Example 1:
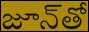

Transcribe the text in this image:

జూన్‌తో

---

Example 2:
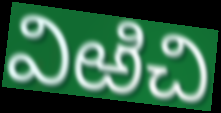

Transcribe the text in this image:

విఱిచి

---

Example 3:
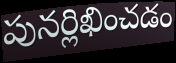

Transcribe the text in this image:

పునర్లిఖించడం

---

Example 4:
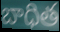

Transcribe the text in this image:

బాధిత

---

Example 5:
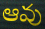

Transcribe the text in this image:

ఆవు